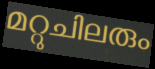
മറ്റുചിലരും